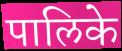
पालिके